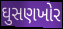
ઘુસણખોર